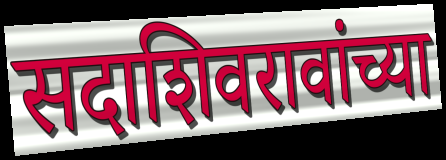
सदाशिवरावांच्या